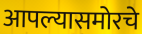
आपल्यासमोरचे